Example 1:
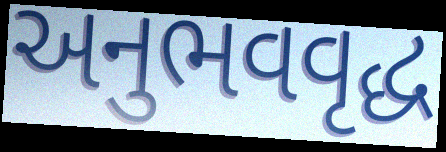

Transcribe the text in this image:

અનુભવવૃદ્ધ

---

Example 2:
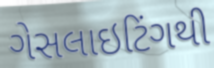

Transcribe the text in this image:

ગેસલાઇટિંગથી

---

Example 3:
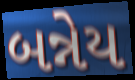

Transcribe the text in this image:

બન્નેય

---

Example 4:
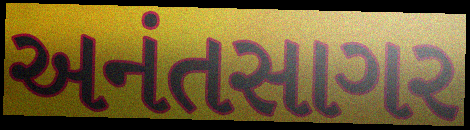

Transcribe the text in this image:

અનંતસાગર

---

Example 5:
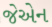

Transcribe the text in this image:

જેએન